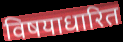
विषयाधारित